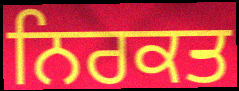
ਨਿਰਕਤ